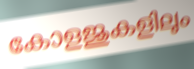
കോളജുകളിലും